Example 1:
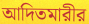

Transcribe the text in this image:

আদিতমারীর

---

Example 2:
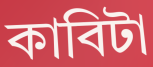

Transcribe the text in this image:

কাবিটা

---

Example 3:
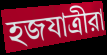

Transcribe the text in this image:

হজযাত্রীরা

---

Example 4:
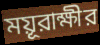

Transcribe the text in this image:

ময়ূরাক্ষীর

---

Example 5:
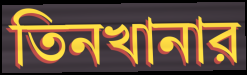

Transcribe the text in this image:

তিনখানার